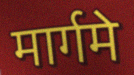
मार्गमे